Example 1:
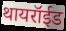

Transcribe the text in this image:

थायरॉईड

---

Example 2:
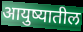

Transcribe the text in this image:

आयुष्यातील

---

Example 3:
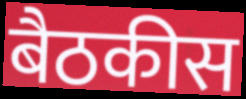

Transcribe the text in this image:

बैठकीस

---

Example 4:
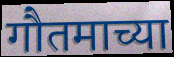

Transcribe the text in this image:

गौतमाच्या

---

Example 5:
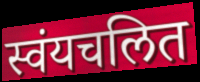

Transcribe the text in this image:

स्वंयचलित